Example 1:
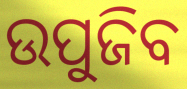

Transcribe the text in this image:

ଉପୁଜିବ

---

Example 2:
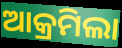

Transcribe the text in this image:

ଆକ୍ରମିଲା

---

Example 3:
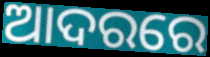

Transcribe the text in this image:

ଆଦରରେ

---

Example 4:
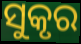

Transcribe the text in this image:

ସୁକୃର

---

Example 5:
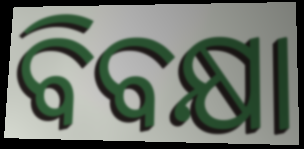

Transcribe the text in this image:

ବିବକ୍ଷା